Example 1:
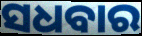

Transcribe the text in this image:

ସଧବାର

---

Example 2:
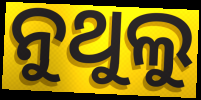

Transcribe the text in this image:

ନୁଥୁଲୁ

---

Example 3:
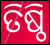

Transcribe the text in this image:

ତିଷ୍ଠି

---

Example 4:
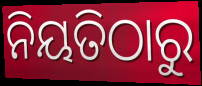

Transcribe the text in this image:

ନିୟତିଠାରୁ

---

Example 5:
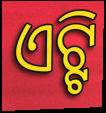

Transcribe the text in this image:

ଏଟ୍ଟି